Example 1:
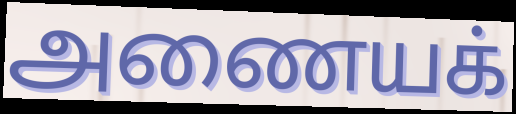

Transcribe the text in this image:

அணையக்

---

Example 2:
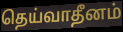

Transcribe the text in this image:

தெய்வாதீனம்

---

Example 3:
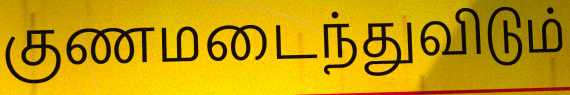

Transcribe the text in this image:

குணமடைந்துவிடும்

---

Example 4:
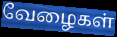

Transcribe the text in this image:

வேழைகள்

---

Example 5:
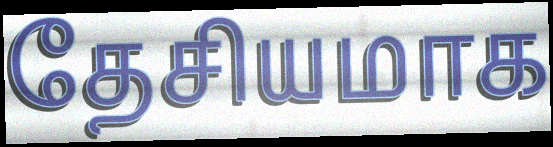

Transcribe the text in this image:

தேசியமாக